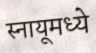
स्नायूमध्ये